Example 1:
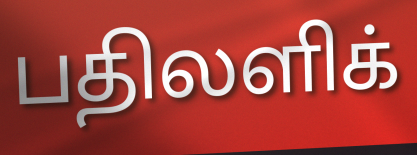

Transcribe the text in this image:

பதிலளிக்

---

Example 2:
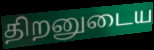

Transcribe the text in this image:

திறனுடைய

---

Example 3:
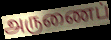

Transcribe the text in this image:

அருணைப்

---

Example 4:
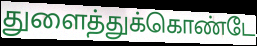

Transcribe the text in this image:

துளைத்துக்கொண்டே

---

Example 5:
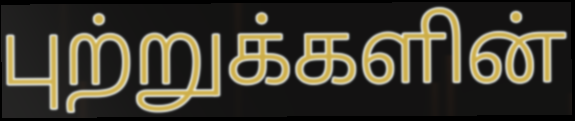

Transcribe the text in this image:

புற்றுக்களின்